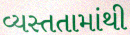
વ્યસ્તતામાંથી